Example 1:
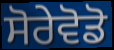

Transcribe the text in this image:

ਸੋਰੇਵੋਡੋ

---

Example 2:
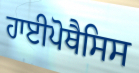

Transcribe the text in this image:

ਹਾਈਪੋਥੈਸਿਸ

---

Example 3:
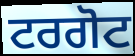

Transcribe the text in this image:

ਟਰਗੋਟ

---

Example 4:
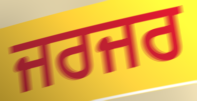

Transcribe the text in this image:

ਜਰਜਰ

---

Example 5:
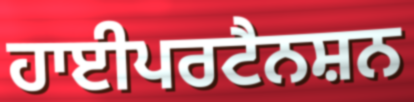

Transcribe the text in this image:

ਹਾਈਪਰਟੈਨਸ਼ਨ